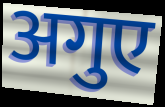
अगुए